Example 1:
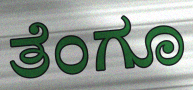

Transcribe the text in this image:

ತೆಂಗೂ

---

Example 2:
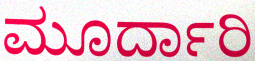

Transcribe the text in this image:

ಮೂರ್ದಾರಿ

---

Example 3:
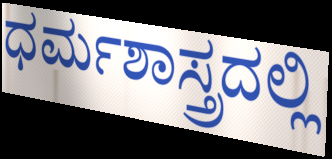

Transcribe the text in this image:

ಧರ್ಮಶಾಸ್ತ್ರದಲ್ಲಿ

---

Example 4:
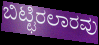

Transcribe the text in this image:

ಬಿಟ್ಟಿರಲಾರವು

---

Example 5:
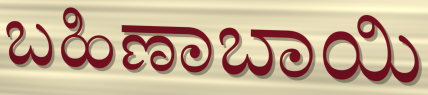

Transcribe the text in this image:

ಬಹಿಣಾಬಾಯಿ